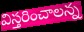
విస్తరించాలన్న